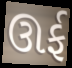
ઊર્ફ